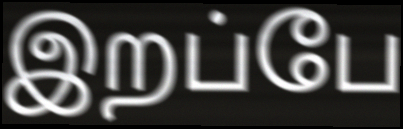
இறப்பே